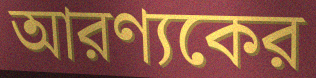
আরণ্যকের